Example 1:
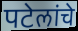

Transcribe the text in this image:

पटेलांचे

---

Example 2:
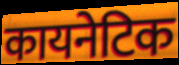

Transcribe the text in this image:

कायनेटिक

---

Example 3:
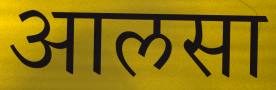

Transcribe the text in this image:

आलसा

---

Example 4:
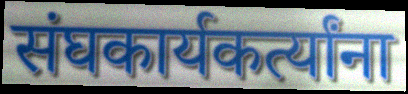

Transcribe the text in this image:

संघकार्यकर्त्यांना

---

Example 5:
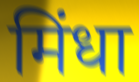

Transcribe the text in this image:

मिंधा